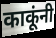
काकूंनी